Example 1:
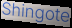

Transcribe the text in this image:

Shingote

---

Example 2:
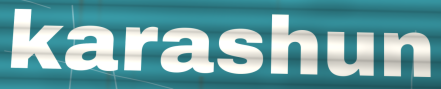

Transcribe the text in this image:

karashun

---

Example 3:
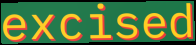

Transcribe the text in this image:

excised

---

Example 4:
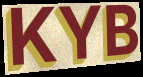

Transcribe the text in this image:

KYB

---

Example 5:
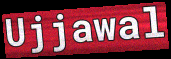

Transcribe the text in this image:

Ujjawal